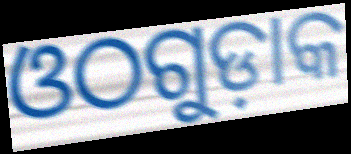
ଓଠଗୁଡ଼ାକ